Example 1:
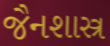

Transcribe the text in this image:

જૈનશાસ્ત્ર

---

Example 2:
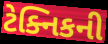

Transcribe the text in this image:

ટેક્નિકની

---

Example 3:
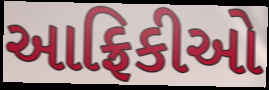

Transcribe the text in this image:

આફ્રિકીઓ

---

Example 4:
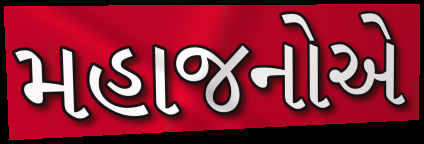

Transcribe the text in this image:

મહાજનોએ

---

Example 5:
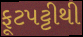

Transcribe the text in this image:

ફૂટપટ્ટીથી